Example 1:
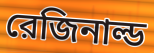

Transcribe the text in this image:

রেজিনাল্ড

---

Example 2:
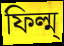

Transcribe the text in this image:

ফিল্ম্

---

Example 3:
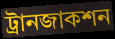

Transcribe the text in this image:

ট্রানজাকশন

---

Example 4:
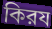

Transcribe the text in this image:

কিরয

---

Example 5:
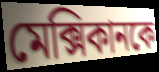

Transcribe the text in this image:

মেক্সিকানকে